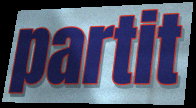
partit